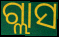
ଗ୍ଲାସ